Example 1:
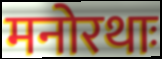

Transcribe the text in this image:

मनोरथाः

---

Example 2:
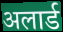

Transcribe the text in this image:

अलार्ड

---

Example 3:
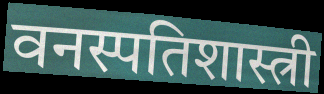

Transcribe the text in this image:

वनस्पतिशास्त्री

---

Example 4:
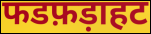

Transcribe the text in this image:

फडफ़ड़ाहट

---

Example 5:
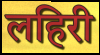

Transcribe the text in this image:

लहिरी